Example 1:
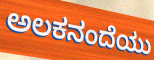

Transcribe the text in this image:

ಅಲಕನಂದೆಯು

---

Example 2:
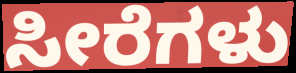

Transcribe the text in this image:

ಸೀರೆಗಳು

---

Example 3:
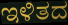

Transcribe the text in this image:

ಇಳಿತದ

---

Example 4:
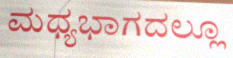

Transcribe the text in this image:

ಮಧ್ಯಭಾಗದಲ್ಲೂ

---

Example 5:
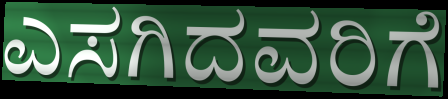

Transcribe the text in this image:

ಎಸಗಿದವರಿಗೆ